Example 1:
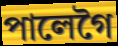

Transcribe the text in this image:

পালেগৈ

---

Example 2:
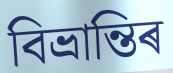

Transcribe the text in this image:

বিভ্ৰান্তিৰ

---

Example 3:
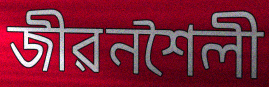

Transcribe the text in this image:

জীৱনশৈলী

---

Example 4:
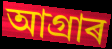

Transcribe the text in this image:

আগ্ৰাৰ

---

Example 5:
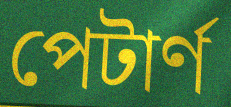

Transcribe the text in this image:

পেটাৰ্ণ